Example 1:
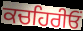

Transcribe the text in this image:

ਕਚਹਿਰੀਓਂ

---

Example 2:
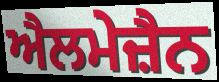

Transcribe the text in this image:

ਐਲਮੇਜ਼ੈਨ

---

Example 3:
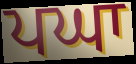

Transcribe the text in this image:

ਪਘਾ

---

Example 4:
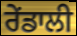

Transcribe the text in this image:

ਰੇਂਡਾਲੀ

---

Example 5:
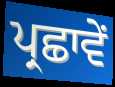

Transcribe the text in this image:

ਪ੍ਰਛਾਵੇਂ